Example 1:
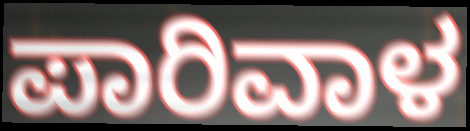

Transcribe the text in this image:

ಪಾರಿವಾಳ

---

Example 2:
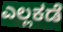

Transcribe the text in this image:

ಎಲ್ಲಕಡೆ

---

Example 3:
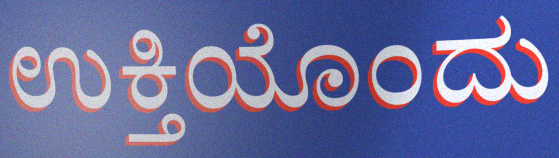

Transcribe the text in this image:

ಉಕ್ತಿಯೊಂದು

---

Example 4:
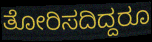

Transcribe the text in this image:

ತೋರಿಸದಿದ್ದರೂ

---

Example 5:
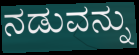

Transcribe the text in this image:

ನಡುವನ್ನು